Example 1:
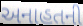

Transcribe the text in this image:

અનાહતની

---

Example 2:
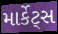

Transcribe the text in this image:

માર્કેટ્સ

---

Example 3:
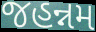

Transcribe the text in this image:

જહન્નમ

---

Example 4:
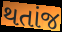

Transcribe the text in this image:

થતાંજ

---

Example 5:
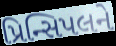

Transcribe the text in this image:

પ્રિન્સિપલને